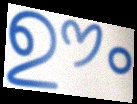
ഊം